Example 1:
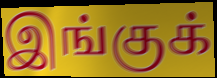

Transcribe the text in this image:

இங்குக்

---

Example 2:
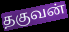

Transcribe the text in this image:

தகுவன்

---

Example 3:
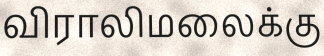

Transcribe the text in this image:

விராலிமலைக்கு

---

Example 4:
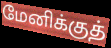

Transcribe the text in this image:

மேனிக்குத்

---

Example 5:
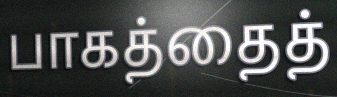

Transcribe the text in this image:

பாகத்தைத்